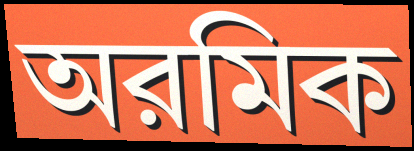
অরমিক